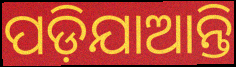
ପଡ଼ିଯାଆନ୍ତି